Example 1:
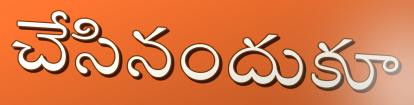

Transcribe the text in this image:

చేసినందుకూ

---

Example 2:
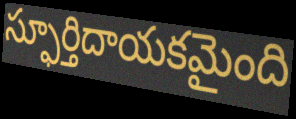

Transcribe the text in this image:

స్ఫూర్తిదాయకమైంది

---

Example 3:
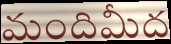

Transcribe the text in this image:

మందిమీద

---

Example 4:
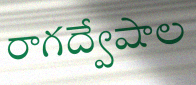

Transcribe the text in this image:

రాగద్వేషాల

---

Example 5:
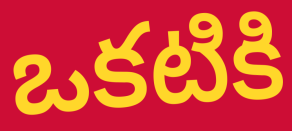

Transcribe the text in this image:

ఒకటికి